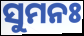
ସୁମନଃ